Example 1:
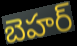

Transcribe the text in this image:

బెహర్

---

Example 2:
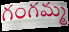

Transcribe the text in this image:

గంగమ్మ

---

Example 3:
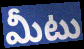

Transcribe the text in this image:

మీటు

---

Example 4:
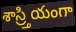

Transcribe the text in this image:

శాస్ర్తియంగా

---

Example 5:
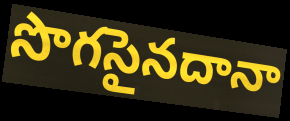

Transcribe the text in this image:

సొగసైనదానా